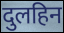
दुलहिन